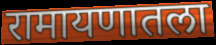
रामायणातला